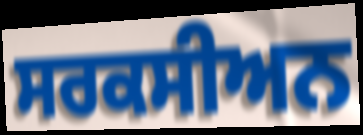
ਸਰਕਸੀਅਨ